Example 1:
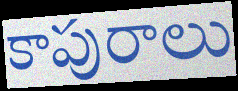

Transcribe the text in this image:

కాపురాలు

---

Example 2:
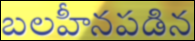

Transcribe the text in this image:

బలహీనపడిన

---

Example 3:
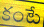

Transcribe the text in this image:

కంటే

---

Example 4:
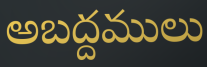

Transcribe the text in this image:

అబద్దములు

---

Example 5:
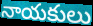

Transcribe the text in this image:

నాయకులు